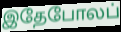
இதேபோலப்